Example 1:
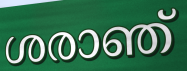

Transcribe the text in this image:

ശരാഞ്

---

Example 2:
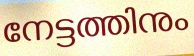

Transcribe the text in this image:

നേട്ടത്തിനും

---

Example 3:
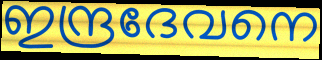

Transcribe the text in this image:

ഇന്ദ്രദേവനെ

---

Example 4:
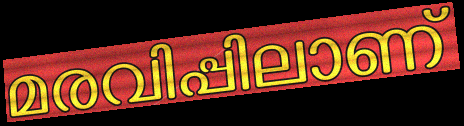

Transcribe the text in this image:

മരവിപ്പിലാണ്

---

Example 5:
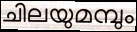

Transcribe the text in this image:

ചിലയുമമ്പും